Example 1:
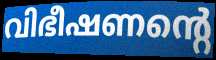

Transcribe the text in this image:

വിഭീഷണന്റെ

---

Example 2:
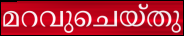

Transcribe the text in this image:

മറവുചെയ്തു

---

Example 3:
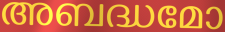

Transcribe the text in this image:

അബദ്ധമോ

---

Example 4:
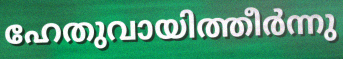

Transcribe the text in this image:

ഹേതുവായിത്തീർന്നു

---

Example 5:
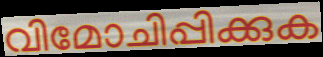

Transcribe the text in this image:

വിമോചിപ്പിക്കുക